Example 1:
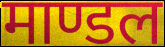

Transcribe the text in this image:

माण्डल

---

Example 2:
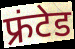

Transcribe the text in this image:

फ्रंटेड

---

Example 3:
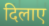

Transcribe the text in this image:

दिलाए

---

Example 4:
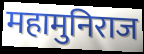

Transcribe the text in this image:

महामुनिराज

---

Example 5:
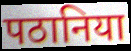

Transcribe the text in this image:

पठानिया